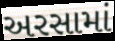
અરસામાં